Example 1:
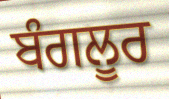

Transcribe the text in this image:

ਬੰਗਲੂਰ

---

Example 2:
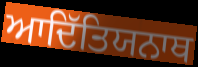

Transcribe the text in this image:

ਆਦਿੱਤਿਯਨਾਥ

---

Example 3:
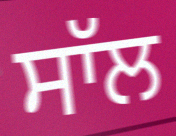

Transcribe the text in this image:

ਸਾੱਲ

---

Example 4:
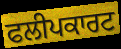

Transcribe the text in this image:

ਫਲੀਪਕਾਰਟ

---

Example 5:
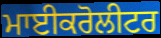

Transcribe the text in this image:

ਮਾਈਕਰੋਲੀਟਰ